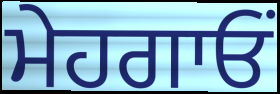
ਮੇਹਗਾਓਂ